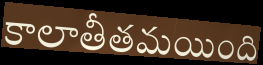
కాలాతీతమయింది